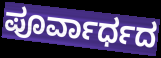
ಪೂರ್ವಾರ್ಧದ